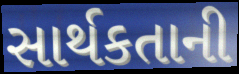
સાર્થકતાની